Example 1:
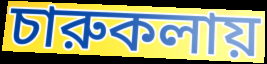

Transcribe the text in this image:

চারুকলায়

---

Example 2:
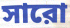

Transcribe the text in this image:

সারো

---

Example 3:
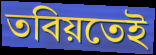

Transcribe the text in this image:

তবিয়তেই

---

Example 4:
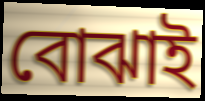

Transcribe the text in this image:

বোঝাই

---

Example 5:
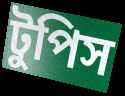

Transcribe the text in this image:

টুপিস